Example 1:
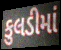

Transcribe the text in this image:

કુલડીમાં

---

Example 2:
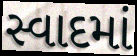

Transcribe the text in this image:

સ્વાદમાં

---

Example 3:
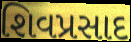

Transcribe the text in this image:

શિવપ્રસાદ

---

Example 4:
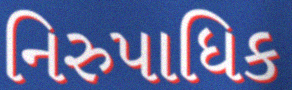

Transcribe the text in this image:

નિરુપાધિક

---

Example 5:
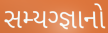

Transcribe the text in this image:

સમ્યગ્જ્ઞાનો